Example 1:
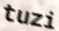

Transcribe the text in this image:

tuzi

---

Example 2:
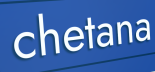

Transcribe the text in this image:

chetana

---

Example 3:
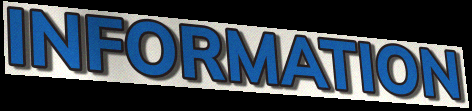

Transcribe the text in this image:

INFORMATION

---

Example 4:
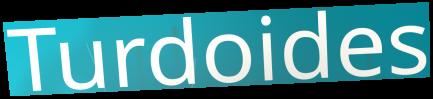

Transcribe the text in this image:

Turdoides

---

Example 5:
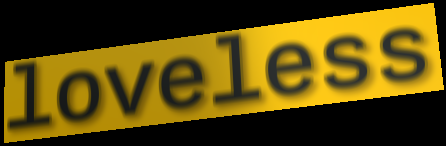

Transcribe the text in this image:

loveless